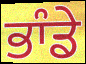
ਭਾੰਡੇ